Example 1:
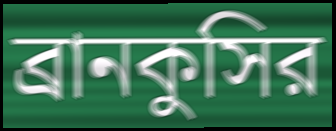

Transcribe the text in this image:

ব্রানকুসির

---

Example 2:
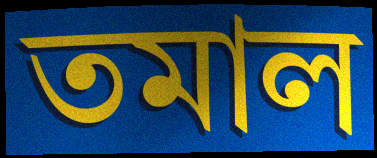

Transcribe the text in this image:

তমাল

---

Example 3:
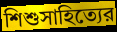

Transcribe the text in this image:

শিশুসাহিত্যের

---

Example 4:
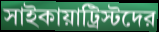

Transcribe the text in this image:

সাইকায়াট্রিস্টদের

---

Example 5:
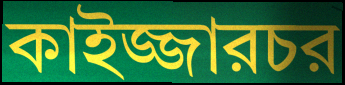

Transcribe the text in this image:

কাইজ্জারচর